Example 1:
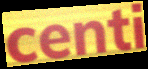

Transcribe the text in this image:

centi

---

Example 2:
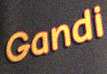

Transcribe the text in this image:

Gandi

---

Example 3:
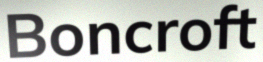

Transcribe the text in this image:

Boncroft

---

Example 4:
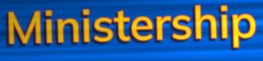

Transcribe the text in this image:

Ministership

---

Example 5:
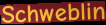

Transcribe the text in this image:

Schweblin